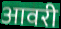
आवरी